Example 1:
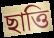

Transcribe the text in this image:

ছাত্তি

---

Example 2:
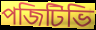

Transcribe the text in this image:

পজিটিভি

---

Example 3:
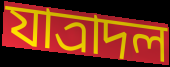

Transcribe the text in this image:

যাত্রাদল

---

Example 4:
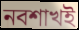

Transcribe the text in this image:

নবশাখই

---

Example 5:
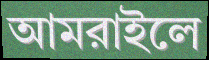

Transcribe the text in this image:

আমরাইলে